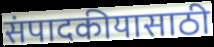
संपादकीयासाठी